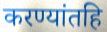
करण्यांतहि